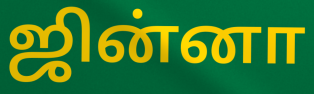
ஜின்னா